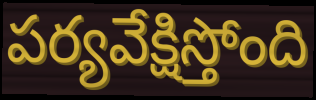
పర్యవేక్షిస్తోంది